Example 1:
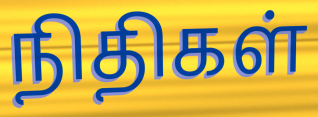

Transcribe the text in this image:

நிதிகள்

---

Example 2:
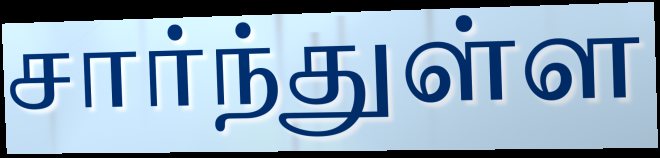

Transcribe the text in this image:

சார்ந்துள்ள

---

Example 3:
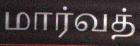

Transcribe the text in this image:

மார்வத்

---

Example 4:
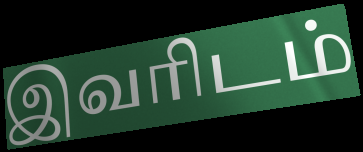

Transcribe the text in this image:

இவரிடம்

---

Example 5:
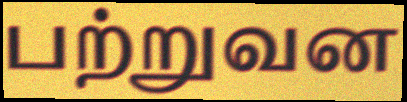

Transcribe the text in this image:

பற்றுவன